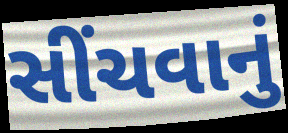
સીંચવાનું